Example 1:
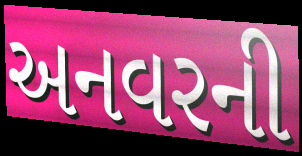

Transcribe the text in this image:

અનવરની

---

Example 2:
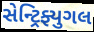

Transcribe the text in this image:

સેન્ટ્રિફ્યુગલ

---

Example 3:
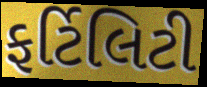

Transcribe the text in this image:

ફર્ટિલિટી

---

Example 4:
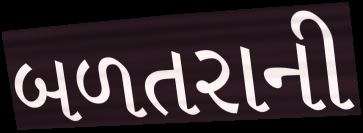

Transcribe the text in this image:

બળતરાની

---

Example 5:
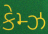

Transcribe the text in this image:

કેમ્ઝ